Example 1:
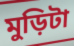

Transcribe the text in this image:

মুড়িটা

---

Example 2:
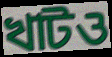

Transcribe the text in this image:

খাটও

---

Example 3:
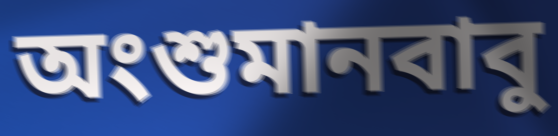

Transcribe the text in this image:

অংশুমানবাবু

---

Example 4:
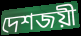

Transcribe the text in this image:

দেশজয়ী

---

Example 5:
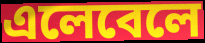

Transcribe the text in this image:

এলেবেলে